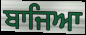
ਬਾਜਿਆ